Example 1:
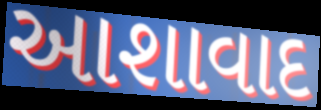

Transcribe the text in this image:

આશાવાદ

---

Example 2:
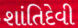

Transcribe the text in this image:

શાંતિદેવી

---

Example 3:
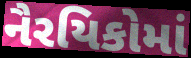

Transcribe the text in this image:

નૈરયિકોમાં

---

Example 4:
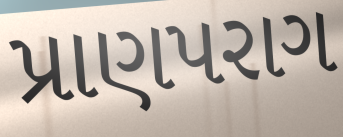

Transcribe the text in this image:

પ્રાણપરાગ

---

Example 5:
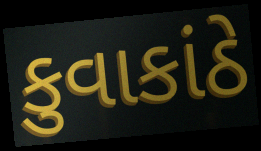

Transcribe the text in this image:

કુવાકાંઠે